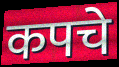
कपचे